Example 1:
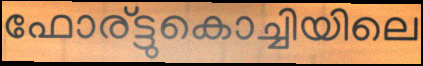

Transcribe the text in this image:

ഫോര്ട്ടുകൊച്ചിയിലെ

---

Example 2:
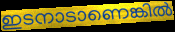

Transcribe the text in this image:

ഇടനാടാണെങ്കിൽ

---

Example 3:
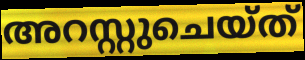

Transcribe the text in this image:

അറസ്റ്റുചെയ്ത്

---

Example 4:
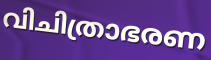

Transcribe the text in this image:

വിചിത്രാഭരണ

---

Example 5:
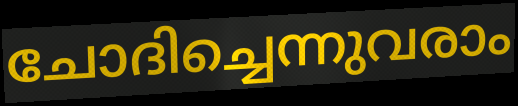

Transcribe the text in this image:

ചോദിച്ചെന്നുവരാം